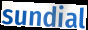
sundial